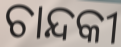
ଚାନ୍ଦକୀ